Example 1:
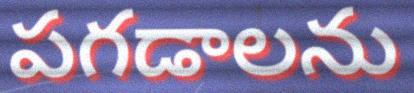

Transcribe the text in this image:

పగడాలను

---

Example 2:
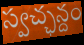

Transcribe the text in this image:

స్వచ్ఛన్దం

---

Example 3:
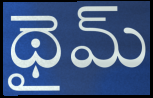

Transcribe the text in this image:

థైమ్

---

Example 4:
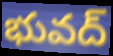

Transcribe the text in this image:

భువద్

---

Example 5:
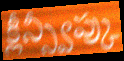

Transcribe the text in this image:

క్లీన్స్వీప్కు